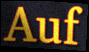
Auf